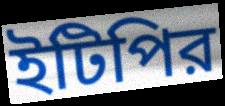
ইটিপির